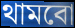
থামবো